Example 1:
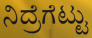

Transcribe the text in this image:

ನಿದ್ರೆಗೆಟ್ಟು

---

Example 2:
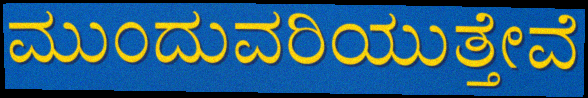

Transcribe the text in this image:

ಮುಂದುವರಿಯುತ್ತೇವೆ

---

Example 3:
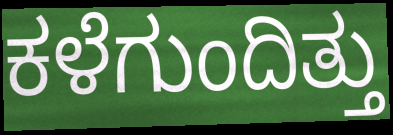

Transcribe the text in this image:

ಕಳೆಗುಂದಿತ್ತು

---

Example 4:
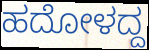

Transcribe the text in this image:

ಹದೋಳದ್ದ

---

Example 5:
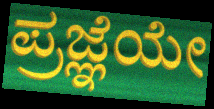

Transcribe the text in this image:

ಪ್ರಜ್ಞೆಯೇ